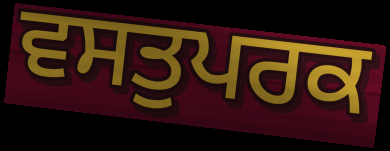
ਵਸਤੁਪਰਕ